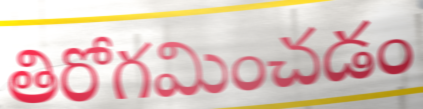
తిరోగమించడం